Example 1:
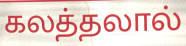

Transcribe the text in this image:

கலத்தலால்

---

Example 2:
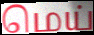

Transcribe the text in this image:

மெய்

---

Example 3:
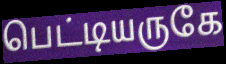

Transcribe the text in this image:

பெட்டியருகே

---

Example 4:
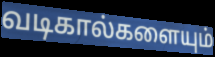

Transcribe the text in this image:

வடிகால்களையும்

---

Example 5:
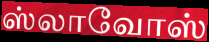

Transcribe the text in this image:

ஸ்லாவோஸ்